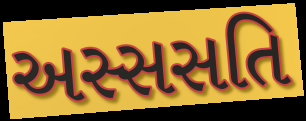
અસ્સસતિ